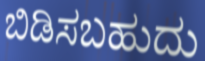
ಬಿಡಿಸಬಹುದು